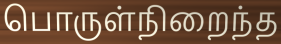
பொருள்நிறைந்த